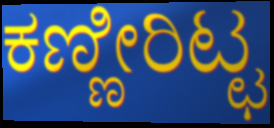
ಕಣ್ಣೀರಿಟ್ಟ